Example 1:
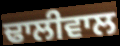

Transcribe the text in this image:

ਢਾਲੀਵਾਲ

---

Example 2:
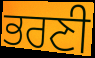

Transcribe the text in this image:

ਭਰਣੀ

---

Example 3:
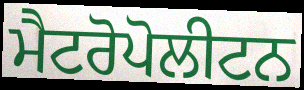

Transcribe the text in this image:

ਮੈਟਰੋਪੋਲੀਟਨ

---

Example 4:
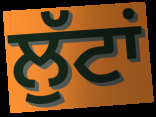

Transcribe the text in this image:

ਲੁੱਟਾਂ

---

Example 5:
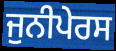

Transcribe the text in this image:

ਜੁਨੀਪੇਰਸ